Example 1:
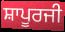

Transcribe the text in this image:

ਸ਼ਾਪੂਰਜੀ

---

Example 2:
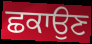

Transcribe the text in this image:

ਛਕਾਉਣ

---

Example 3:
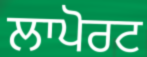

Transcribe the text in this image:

ਲਾਪੋਰਟ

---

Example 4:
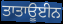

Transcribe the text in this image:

ਤਾਤਾਊਈਨ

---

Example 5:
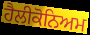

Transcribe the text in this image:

ਹੈਲੀਕੋਨਿਅਮ